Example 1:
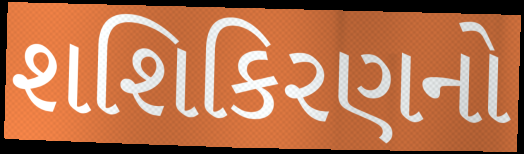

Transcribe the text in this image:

શશિકિરણનો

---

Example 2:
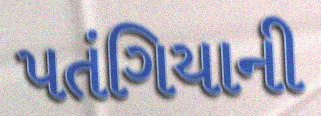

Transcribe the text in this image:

પતંગિયાની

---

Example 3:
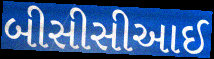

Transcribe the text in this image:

બીસીસીઆઈ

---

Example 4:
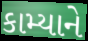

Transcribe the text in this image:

કામ્યાને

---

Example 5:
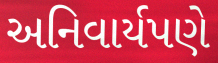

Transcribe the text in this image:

અનિવાર્યપણે